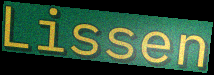
Lissen